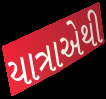
યાત્રાએથી